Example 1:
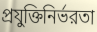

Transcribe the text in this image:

প্রযুক্তিনির্ভরতা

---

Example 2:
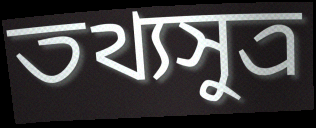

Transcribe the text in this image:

তথ্যসুত্র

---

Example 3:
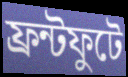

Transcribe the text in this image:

ফ্রন্টফুটে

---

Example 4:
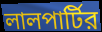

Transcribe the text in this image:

লালপার্টির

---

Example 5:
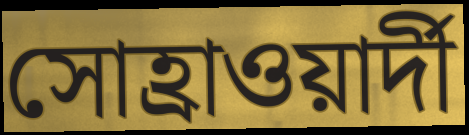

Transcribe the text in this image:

সোহ্রাওয়ার্দী